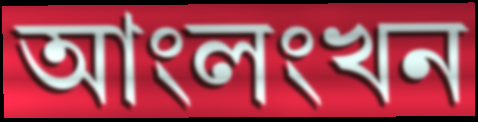
আংলংখন